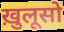
ख़ुलूसो